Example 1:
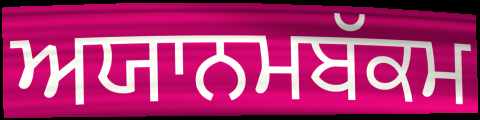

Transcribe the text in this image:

ਅਯਾਨਮਬੱਕਮ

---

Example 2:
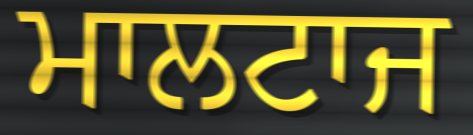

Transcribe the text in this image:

ਮਾਲਟਾਜ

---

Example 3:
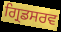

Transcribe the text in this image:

ਗ੍ਰਿਡਸਰਵ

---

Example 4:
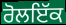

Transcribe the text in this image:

ਰੋਲਇੱਕ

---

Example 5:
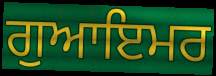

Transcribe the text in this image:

ਗੁਆਇਮਰ